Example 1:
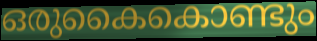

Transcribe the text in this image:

ഒരുകൈകൊണ്ടും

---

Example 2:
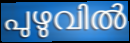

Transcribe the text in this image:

പുഴുവിൽ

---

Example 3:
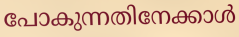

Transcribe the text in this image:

പോകുന്നതിനേക്കാൾ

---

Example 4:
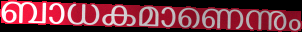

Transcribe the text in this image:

ബാധകമാണെന്നും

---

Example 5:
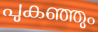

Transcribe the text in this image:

പുകഞ്ഞും